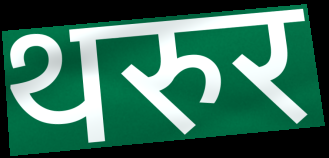
थरुर